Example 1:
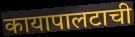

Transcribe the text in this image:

कायापालटाची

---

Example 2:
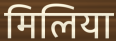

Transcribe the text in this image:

मिलिया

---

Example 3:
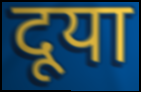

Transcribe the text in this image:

दूया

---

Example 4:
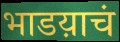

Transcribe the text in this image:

भाडय़ाचं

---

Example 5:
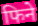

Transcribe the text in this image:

फिने